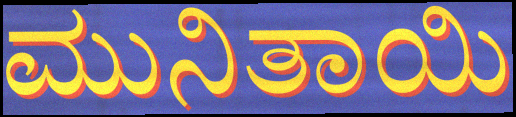
ಮುನಿತಾಯಿ